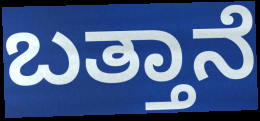
ಬತ್ತಾನೆ